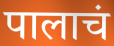
पालाचं